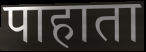
पाहाता